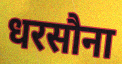
धरसौना